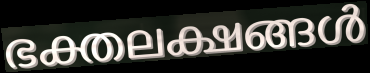
ഭക്തലക്ഷങ്ങൾ